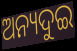
ଅନ୍ୟଦୁଇ